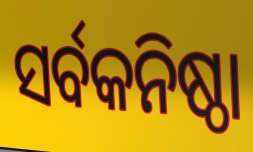
ସର୍ବକନିଷ୍ଠା